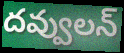
దవ్వులన్